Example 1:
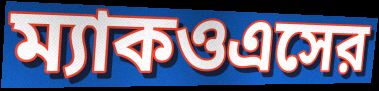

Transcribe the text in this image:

ম্যাকওএসের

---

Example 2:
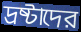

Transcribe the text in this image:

দ্রষ্টাদের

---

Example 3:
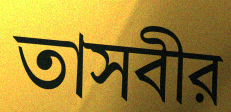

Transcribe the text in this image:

তাসবীর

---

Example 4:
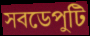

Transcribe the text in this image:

সবডেপুটি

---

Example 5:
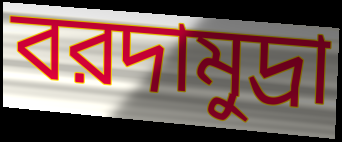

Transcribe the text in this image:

বরদামুদ্রা